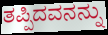
ತಪ್ಪಿದವನನ್ನು